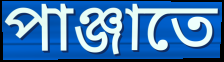
পাঞ্জাতে